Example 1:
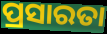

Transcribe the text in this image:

ପ୍ରସାରତା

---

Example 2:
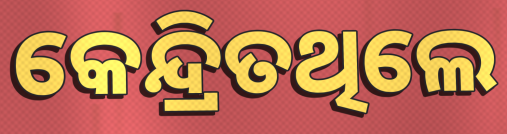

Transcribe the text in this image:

କେନ୍ଦ୍ରିତଥିଲେ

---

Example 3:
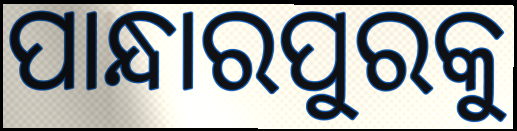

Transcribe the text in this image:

ପାନ୍ଧାରପୁରକୁ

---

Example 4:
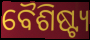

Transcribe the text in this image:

ବୈଶିଷ୍ଟ୍ୟ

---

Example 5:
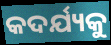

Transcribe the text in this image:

କଦର୍ଯ୍ୟକୁ